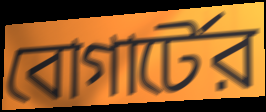
বোগার্টের